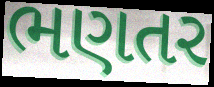
ભણતર